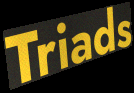
Triads